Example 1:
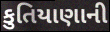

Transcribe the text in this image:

કુતિયાણાની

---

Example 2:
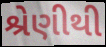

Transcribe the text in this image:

શ્રેણીથી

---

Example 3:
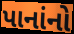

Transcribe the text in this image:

પાનાંનો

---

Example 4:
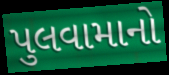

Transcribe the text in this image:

પુલવામાનો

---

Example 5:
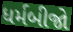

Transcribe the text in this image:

ધર્મબીજો